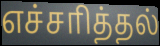
எச்சரித்தல்